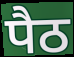
पैठ